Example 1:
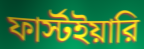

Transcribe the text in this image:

ফার্স্টইয়ারি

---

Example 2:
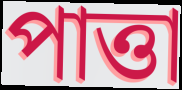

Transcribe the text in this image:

পাত্তা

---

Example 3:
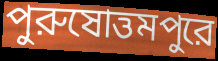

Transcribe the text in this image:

পুরুষোত্তমপুরে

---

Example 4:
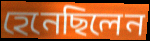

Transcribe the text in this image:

হেনেছিলেন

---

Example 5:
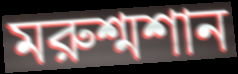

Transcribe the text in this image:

মরুশ্মশান